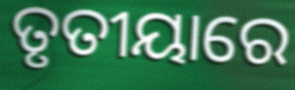
ତୃତୀୟାରେ